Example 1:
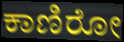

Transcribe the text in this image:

ಕಾಣಿರೋ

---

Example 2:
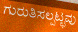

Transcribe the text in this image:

ಗುರುತಿಸಲ್ಪಟ್ಟವು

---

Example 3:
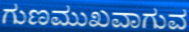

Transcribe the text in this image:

ಗುಣಮುಖವಾಗುವ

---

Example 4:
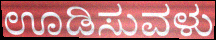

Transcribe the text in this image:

ಊಡಿಸುವಳು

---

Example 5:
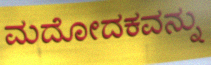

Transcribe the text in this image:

ಮದೋದಕವನ್ನು